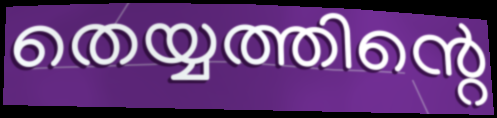
തെയ്യത്തിന്റെ